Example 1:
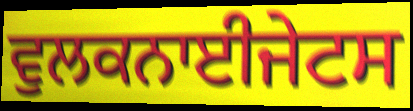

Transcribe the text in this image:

ਵੁਲਕਨਾਈਜੇਟਸ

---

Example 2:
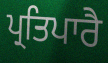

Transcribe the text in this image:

ਪ੍ਰਤਿਪਾਰੈ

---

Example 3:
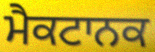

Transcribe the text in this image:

ਮੈਕਟਾਨਕ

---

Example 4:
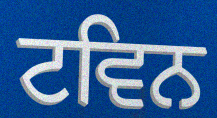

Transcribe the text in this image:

ਟਵਿਨ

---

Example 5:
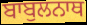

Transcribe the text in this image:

ਬਾਬੁਲਨਾਥ